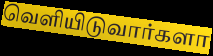
வெளியிடுவார்களா